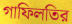
গাফিলতির